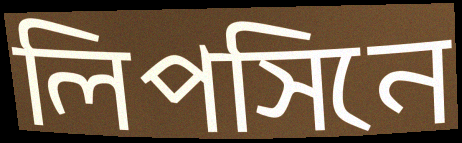
লিপসিনে